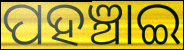
ପହଞ୍ଚାଇ